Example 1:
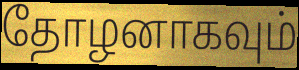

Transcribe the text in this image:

தோழனாகவும்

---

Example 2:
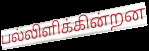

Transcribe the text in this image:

பல்லிளிக்கின்றன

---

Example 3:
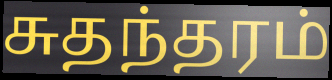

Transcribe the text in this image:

சுதந்தரம்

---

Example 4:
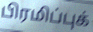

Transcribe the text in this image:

பிரமிப்புக்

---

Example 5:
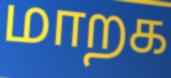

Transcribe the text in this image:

மாறக